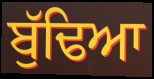
ਬੁੱਢਿਆ